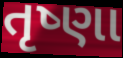
તૃષ્ણા